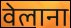
वेलाना